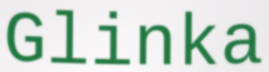
Glinka